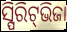
ସ୍ପିରିଟ୍‌ଭିଜା